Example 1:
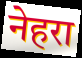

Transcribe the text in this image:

नेहरा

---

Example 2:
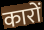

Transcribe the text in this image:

कारों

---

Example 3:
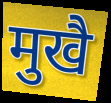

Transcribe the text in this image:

मुखै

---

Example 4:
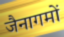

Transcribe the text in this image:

जैनागमों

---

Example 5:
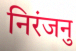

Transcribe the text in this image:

निरंजनु